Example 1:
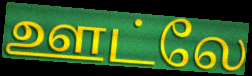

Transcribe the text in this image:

ஊட்லே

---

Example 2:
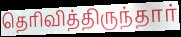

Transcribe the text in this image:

தெரிவித்திருந்தார்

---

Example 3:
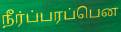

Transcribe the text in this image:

நீர்ப்பரப்பென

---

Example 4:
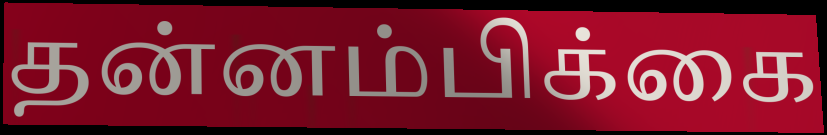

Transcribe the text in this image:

தன்னம்பிக்கை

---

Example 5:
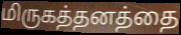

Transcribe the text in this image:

மிருகத்தனத்தை